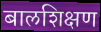
बालशिक्षण